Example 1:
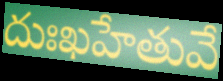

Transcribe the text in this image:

దుఃఖహేతువే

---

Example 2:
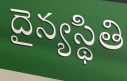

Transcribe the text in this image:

దైన్యస్థితి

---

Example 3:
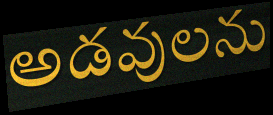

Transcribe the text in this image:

అడవులను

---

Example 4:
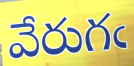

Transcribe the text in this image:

వేరుగఁ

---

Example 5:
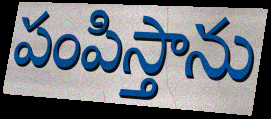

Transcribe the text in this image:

పంపిస్తాను